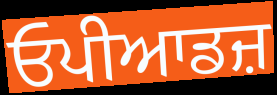
ਓਪੀਆਡਜ਼